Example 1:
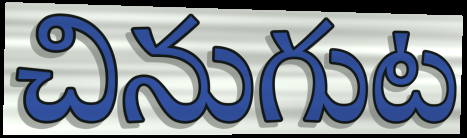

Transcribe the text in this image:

చినుగుట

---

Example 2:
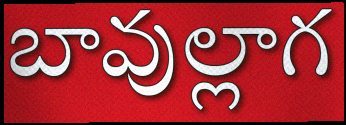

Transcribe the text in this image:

బావుల్లాగ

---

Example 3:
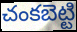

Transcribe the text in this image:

చంకబెట్టి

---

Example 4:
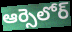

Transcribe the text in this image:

ఆర్సెలోర్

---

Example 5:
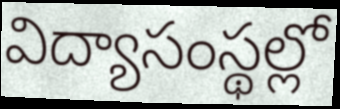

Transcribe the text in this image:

విద్యాసంస్థల్లో